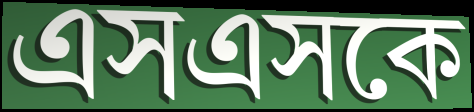
এসএসকে